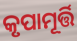
କୃପାମୂର୍ତ୍ତି